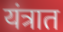
यंत्रात